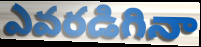
ఎవరడిగినా